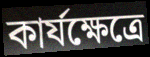
কার্যক্ষেত্রে